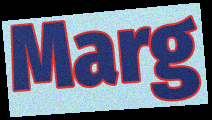
Marg